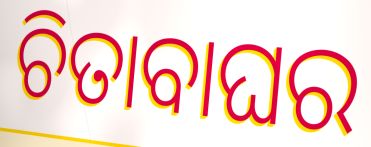
ଚିତାବାଘର